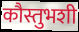
कौस्तुभशी